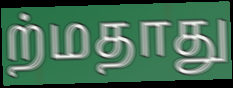
ற்மதாது